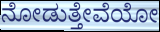
ನೋಡುತ್ತೇವೆಯೋ